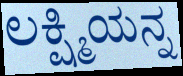
ಲಕ್ಷ್ಮಿಯನ್ನ